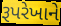
રૂપરેખાને